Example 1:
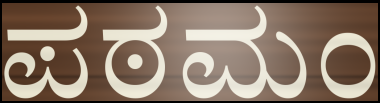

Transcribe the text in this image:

ಪಠಮಂ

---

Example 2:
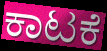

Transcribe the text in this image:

ಕಾಟಕೆ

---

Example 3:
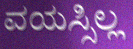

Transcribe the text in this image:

ವಯಸ್ಸಿಲ್ಲ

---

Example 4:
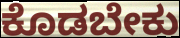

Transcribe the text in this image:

ಕೊಡಬೇಕು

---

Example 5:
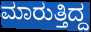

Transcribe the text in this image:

ಮಾರುತ್ತಿದ್ದ